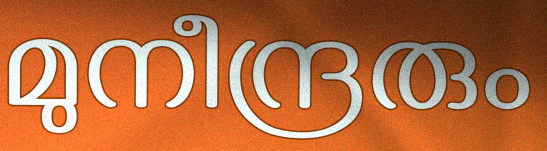
മുനീന്ദ്രരും